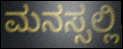
ಮನಸ್ಸಲ್ಲಿ